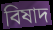
বিষাদ